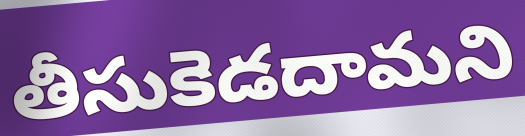
తీసుకెడదామని